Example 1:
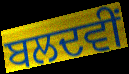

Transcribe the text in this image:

ਬਲਦਵੀਂ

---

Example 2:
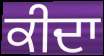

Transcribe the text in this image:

ਕੀਦਾ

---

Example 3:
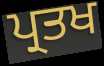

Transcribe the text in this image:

ਪ੍ਰਤਖ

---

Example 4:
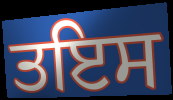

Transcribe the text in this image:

ਤਇਸ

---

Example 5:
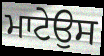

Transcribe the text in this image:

ਮਾਟੇਉਸ